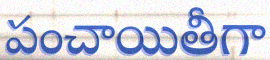
పంచాయితీగా